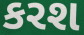
કરશ